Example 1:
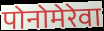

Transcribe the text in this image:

पोनोमेरेवा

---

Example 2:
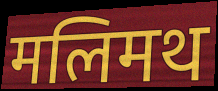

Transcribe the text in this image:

मलिमथ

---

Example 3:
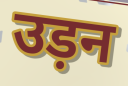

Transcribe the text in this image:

उड़न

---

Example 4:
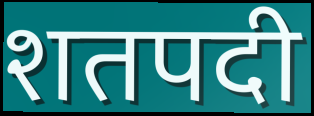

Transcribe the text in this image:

शतपदी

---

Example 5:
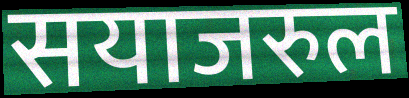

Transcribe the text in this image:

सयाजरुल